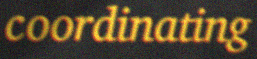
coordinating